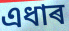
এধাৰ